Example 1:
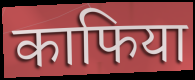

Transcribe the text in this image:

काफिया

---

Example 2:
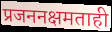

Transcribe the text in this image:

प्रजननक्षमताही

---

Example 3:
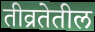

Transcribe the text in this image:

तीव्रतेतील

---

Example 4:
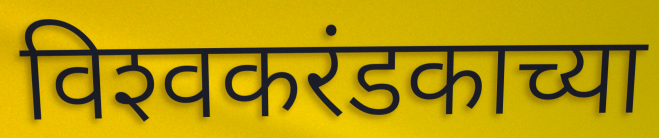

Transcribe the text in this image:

विश्‍वकरंडकाच्या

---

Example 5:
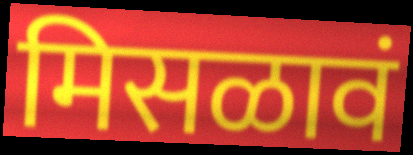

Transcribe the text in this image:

मिसळावं